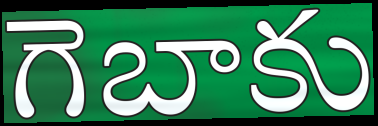
గెబాకు